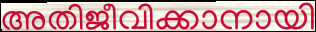
അതിജീവിക്കാനായി